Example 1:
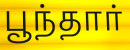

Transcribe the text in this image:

பூந்தார்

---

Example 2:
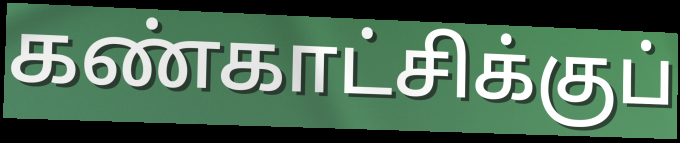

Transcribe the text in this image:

கண்காட்சிக்குப்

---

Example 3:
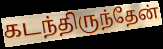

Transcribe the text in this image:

கடந்திருந்தேன்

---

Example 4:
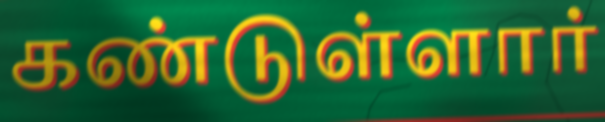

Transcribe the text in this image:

கண்டுள்ளார்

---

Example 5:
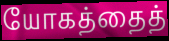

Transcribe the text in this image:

யோகத்தைத்